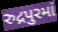
રુદ્રપુરમાં